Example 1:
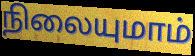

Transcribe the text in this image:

நிலையுமாம்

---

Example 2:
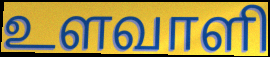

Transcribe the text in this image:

உளவாளி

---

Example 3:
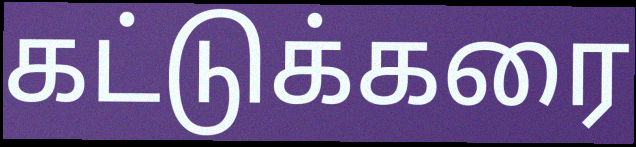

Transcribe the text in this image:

கட்டுக்கரை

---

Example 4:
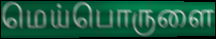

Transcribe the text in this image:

மெய்பொருளை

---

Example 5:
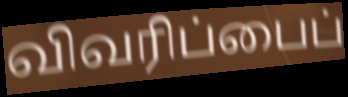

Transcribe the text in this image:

விவரிப்பைப்